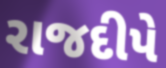
રાજદીપે